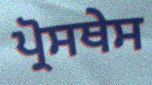
ਪ੍ਰੋਸਥੇਸ